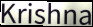
Krishna